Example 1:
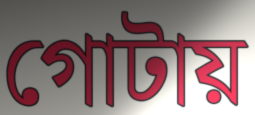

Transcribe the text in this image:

গোটায়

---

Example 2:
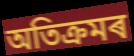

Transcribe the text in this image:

অতিক্ৰমৰ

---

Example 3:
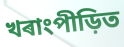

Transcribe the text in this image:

খৰাংপীড়িত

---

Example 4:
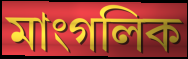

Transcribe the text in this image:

মাংগলিক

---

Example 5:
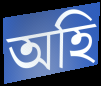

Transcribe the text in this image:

অহি